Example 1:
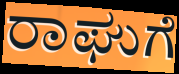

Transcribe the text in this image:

ರಾಘುಗೆ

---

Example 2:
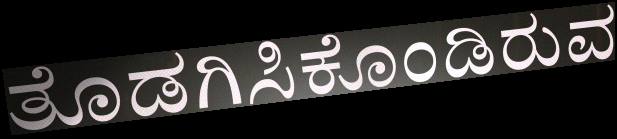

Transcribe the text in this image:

ತೊಡಗಿಸಿಕೊಂಡಿರುವ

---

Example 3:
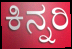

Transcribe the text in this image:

ಕಿನ್ನರಿ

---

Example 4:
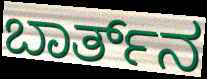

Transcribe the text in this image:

ಬಾರ್ತ್‌ನ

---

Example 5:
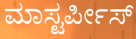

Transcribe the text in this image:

ಮಾಸ್ಟರ್ಪೀಸ್